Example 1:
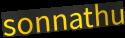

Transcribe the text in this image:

sonnathu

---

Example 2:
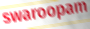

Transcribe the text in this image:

swaroopam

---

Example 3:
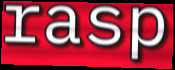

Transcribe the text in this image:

rasp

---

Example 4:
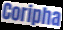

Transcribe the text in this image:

Coripha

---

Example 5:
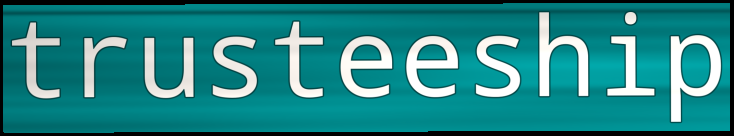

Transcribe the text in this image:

trusteeship